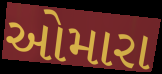
ઓમારા